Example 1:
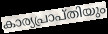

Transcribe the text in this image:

കാര്യപ്രാപ്തിയും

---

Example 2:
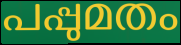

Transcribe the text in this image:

പപ്പുമതം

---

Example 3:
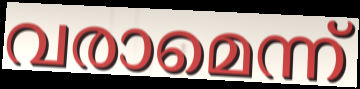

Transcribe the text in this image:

വരാമെന്ന്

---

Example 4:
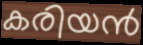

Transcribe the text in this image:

കരിയൻ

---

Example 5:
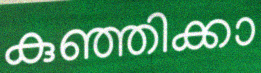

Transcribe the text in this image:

കുഞ്ഞിക്കാ